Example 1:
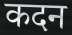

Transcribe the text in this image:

कदन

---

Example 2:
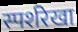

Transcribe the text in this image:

स्पर्शरेखा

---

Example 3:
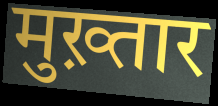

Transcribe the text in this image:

मुख़्तार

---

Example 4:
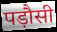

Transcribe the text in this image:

पड़ौसी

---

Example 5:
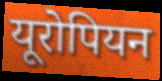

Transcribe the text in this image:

यूरोपियन